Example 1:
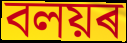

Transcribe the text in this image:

বলয়ৰ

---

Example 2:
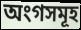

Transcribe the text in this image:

অংগসমূহ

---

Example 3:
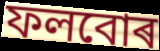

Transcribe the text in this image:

ফলবোৰ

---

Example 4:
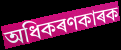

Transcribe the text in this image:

অধিকৰণকাৰক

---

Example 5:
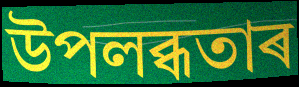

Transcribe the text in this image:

উপলব্ধতাৰ